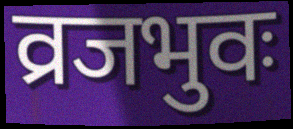
व्रजभुवः